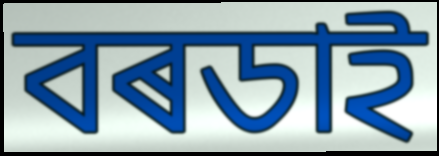
বৰডাই